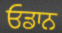
ਓਡਾਨ